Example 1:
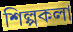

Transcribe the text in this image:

শিল্পকলা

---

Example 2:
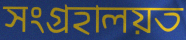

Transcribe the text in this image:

সংগ্ৰহালয়ত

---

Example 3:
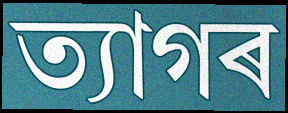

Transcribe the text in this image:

ত্যাগৰ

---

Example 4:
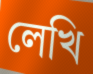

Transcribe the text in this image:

লেখি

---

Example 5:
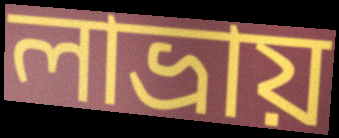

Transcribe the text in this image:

লাভ্ৰায়